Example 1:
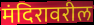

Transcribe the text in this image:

मंदिरावरील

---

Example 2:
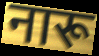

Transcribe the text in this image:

नारू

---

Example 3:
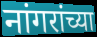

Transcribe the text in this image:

नांगरांच्या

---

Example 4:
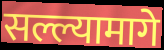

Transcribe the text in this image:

सल्ल्यामागे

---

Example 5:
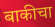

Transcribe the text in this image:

बाकीचा